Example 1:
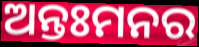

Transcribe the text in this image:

ଅନ୍ତଃମନର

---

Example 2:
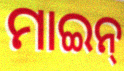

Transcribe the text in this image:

ମାଇନ୍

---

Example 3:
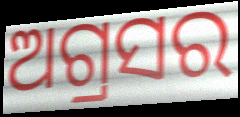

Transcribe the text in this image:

ଅଗ୍ରସର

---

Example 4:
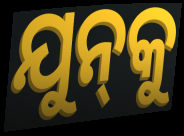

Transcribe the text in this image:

ଯୁନ୍‍କୁ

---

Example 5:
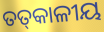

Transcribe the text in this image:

ତତ୍‌କାଳୀୟ